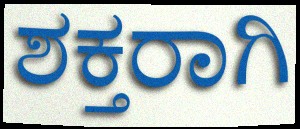
ಶಕ್ತರಾಗಿ